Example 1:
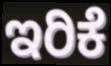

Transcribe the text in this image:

ಇರಿಕೆ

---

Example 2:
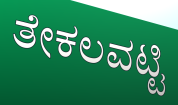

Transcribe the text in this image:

ತೇಕಲವಟ್ಟಿ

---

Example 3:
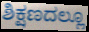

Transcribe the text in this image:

ಶಿಕ್ಷಣದಲ್ಲೂ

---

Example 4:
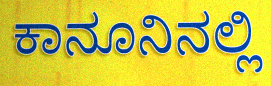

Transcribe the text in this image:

ಕಾನೂನಿನಲ್ಲಿ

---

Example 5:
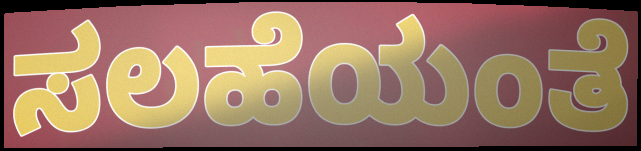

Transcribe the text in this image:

ಸಲಹೆಯಂತೆ